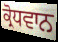
ਕ੍ਰੋਧਵਾਨ